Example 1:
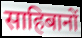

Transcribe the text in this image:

साहिबानों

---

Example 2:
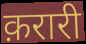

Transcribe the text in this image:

क़रारी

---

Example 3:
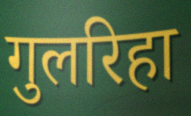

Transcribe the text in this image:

गुलरिहा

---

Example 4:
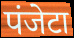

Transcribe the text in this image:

पंजेटा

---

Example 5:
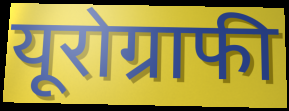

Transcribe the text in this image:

यूरोग्राफी